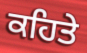
ਕਹਿਤੇ